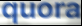
quora